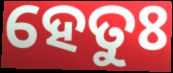
ହେତୁଃ